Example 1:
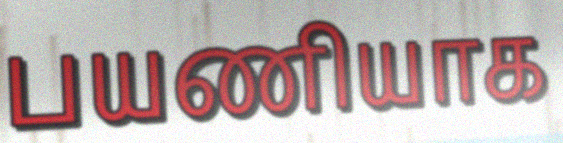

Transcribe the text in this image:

பயணியாக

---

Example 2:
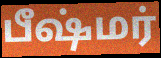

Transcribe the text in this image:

பீஷ்மர்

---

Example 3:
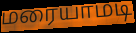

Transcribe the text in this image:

மரையாமடி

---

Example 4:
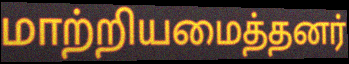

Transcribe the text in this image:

மாற்றியமைத்தனர்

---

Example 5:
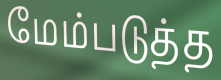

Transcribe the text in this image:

மேம்படுத்த